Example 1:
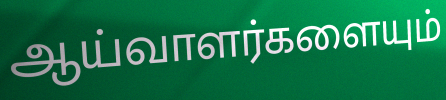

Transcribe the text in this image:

ஆய்வாளர்களையும்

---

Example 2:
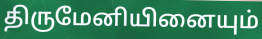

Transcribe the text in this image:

திருமேனியினையும்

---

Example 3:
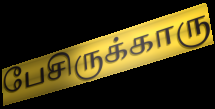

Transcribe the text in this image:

பேசிருக்காரு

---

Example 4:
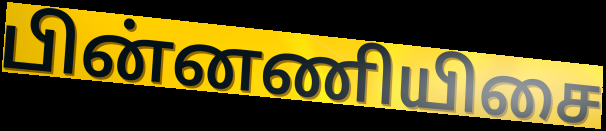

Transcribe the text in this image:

பின்னணியிசை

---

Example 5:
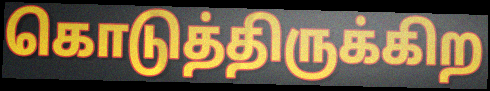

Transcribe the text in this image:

கொடுத்திருக்கிற